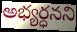
అభ్యర్ధనని